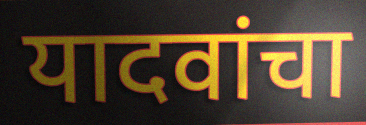
यादवांचा